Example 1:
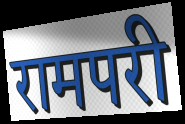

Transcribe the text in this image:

रामपरी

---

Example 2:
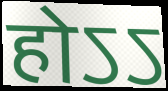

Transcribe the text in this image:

होऽऽ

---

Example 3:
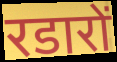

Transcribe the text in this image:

रडारों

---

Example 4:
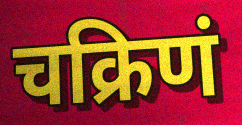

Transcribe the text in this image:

चक्रिणं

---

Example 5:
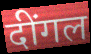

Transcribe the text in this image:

दींगल